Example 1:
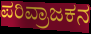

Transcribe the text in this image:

ಪರಿವ್ರಾಜಕನ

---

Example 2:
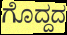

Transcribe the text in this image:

ಗೊದ್ದದ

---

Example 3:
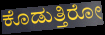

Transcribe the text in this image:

ಕೊಡುತ್ತಿರೋ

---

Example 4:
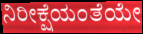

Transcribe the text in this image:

ನಿರೀಕ್ಷೆಯಂತೆಯೇ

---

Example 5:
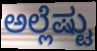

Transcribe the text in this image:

ಅಲ್ಲೆಷ್ಟು